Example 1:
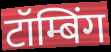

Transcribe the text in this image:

टॉम्बिंग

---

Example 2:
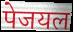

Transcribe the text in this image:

पेजयल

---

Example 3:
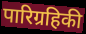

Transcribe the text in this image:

पारिग्रहिकी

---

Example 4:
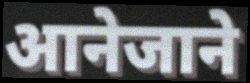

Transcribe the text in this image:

आनेजाने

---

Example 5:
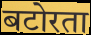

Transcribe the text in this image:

बटोरता